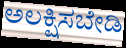
ಅಲಕ್ಷಿಸಬೇಡಿ